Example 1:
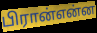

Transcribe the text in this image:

பிரான்என்ன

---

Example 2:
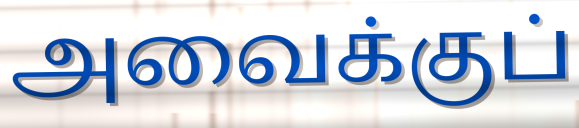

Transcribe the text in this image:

அவைக்குப்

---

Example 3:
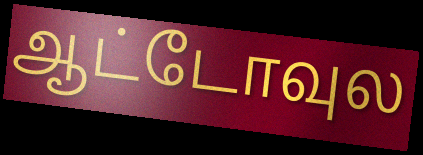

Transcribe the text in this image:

ஆட்டோவுல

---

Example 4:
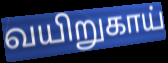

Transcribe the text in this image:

வயிறுகாய்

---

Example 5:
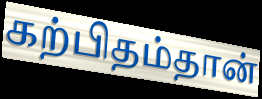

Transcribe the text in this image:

கற்பிதம்தான்